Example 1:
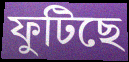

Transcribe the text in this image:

ফুটিছে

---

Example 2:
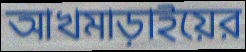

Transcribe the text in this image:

আখমাড়াইয়ের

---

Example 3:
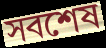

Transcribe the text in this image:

সবশেষ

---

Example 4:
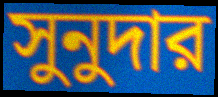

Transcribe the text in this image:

সুনুদার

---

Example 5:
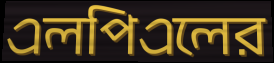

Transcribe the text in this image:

এলপিএলের